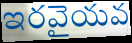
ఇరవైయవ